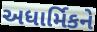
અધાર્મિકને